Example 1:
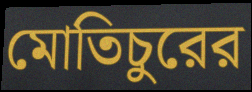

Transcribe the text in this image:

মোতিচুরের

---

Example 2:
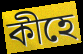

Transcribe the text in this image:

কীহে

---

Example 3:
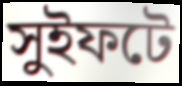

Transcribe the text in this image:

সুইফটে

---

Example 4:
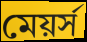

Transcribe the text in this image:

মেয়র্স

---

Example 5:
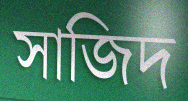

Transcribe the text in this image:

সাজিদ